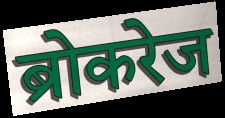
ब्रोकरेज